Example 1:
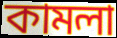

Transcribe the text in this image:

কামলা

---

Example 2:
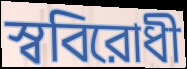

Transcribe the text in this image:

স্ববিরোধী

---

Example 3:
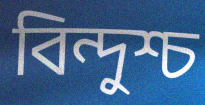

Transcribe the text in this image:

বিন্দুশ্চ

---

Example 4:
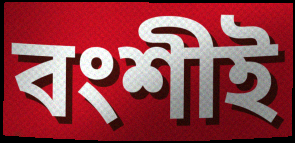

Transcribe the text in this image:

বংশীই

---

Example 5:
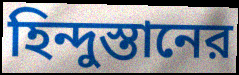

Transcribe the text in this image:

হিন্দুস্তানের